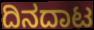
ದಿನದಾಟ